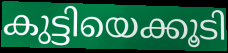
കുട്ടിയെക്കൂടി